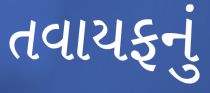
તવાયફનું